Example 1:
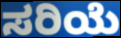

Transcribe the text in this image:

ಸರಿಯೆ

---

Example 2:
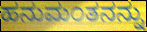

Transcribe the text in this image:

ಹನುಮಂತನನ್ನು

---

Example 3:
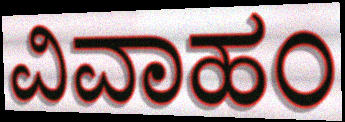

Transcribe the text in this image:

ವಿವಾಹಂ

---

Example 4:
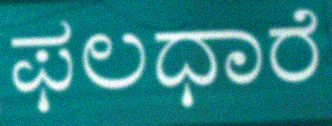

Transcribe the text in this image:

ಫಲಧಾರೆ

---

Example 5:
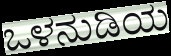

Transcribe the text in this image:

ಒಳನುಡಿಯ